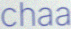
chaa